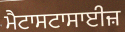
ਮੈਟਾਸਟਾਸਾਈਜ਼